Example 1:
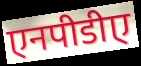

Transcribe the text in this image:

एनपीडीए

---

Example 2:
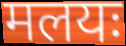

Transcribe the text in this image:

मलयः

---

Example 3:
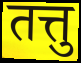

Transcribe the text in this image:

तत्तु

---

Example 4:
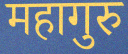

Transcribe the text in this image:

महागुरु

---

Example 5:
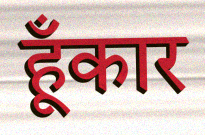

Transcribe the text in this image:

हूँकार